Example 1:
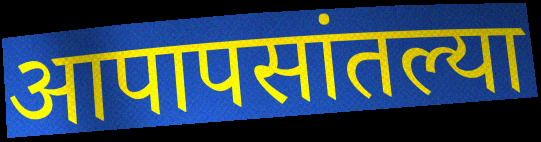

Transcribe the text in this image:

आपापसांतल्या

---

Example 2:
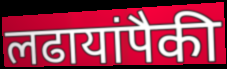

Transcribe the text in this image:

लढायांपैकी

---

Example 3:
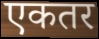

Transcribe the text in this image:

एकतर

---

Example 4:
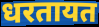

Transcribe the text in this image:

धरतायत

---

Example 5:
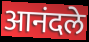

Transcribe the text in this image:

आनंदले